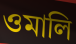
ওমালি